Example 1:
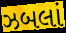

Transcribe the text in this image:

ઝબલાં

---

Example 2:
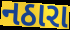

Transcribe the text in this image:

નઠારા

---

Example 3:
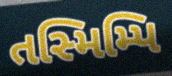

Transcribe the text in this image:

તસ્મિમ્પિ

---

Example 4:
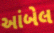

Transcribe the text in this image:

આંબેલ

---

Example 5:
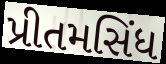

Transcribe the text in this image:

પ્રીતમસિંધ